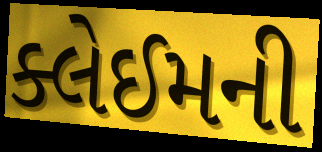
ક્લેઈમની